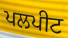
ਪਲਪੀਟ